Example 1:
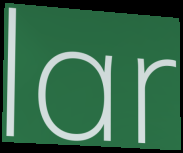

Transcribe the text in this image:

lar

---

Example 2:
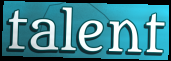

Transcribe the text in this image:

talent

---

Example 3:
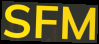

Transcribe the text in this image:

SFM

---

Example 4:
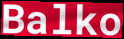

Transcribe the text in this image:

Balko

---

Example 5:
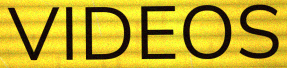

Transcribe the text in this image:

VIDEOS